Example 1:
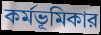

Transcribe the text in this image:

কর্মভূমিকার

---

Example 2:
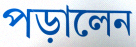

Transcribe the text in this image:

পড়ালেন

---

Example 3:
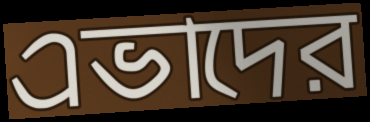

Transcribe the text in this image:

এভাদের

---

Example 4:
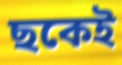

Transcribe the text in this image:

ছকেই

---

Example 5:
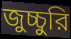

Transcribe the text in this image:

জুচ্চুরি